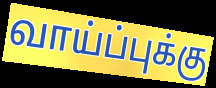
வாய்ப்புக்கு